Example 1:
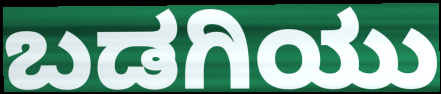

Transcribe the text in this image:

ಬಡಗಿಯು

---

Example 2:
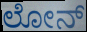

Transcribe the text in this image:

ಲೋನ್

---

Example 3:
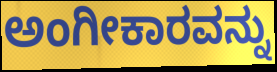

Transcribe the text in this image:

ಅಂಗೀಕಾರವನ್ನು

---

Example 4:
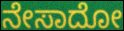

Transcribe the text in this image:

ನೇಸಾದೋ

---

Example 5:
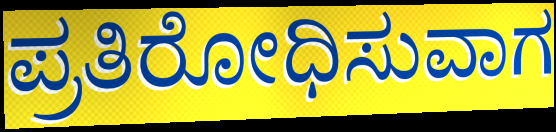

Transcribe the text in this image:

ಪ್ರತಿರೋಧಿಸುವಾಗ